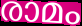
രാമം